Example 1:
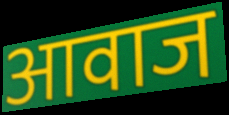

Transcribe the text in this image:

आवाज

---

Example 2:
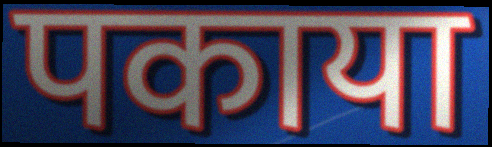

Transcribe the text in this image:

पकाया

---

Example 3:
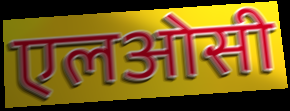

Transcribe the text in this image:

एलओसी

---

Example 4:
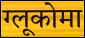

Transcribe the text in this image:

ग्लूकोमा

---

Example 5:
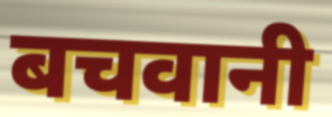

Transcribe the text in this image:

बचवानी